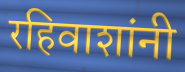
रहिवाशांनी